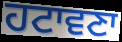
ਹਟਾਵਣਾ